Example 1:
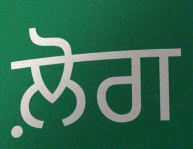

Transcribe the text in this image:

ਲ਼ੋਗ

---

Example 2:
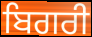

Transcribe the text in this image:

ਬਿਗਰੀ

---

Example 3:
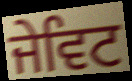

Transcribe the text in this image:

ਜੇਵਿਟ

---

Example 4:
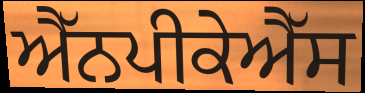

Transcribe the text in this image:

ਐੱਨਪੀਕੇਐੱਸ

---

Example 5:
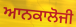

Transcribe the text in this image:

ਆਨਕਾਲੋਜੀ